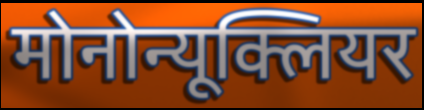
मोनोन्यूक्लियर